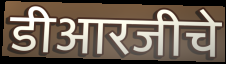
डीआरजीचे